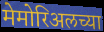
मेमोरिअलच्या